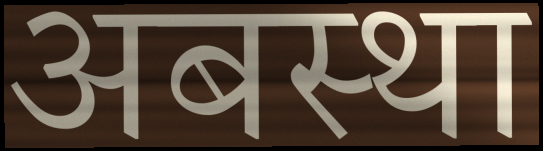
अबस्था